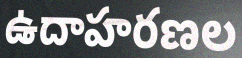
ఉదాహరణల